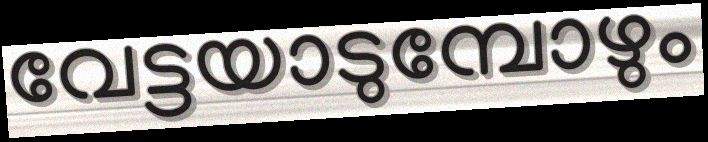
വേട്ടയാടുമ്പോഴും